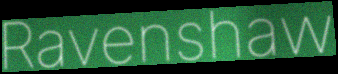
Ravenshaw